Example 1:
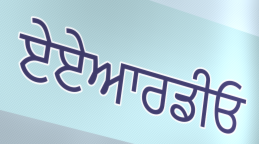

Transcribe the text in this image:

ਏਏਆਰਡੀਓ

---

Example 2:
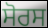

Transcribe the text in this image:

ਸੋਰਸ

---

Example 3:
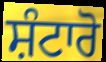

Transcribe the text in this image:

ਸ਼ੰਟਾਰੋ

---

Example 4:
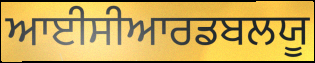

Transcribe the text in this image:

ਆਈਸੀਆਰਡਬਲਯੂ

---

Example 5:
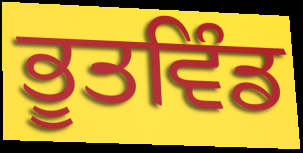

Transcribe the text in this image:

ਭੂਤਵਿੰਡ